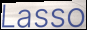
Lasso